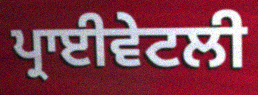
ਪ੍ਰਾਈਵੇਟਲੀ